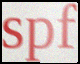
spf